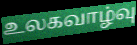
உலகவாழ்வு